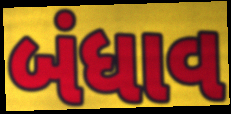
બંધાવ